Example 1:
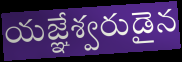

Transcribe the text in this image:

యజ్ఞేశ్వరుడైన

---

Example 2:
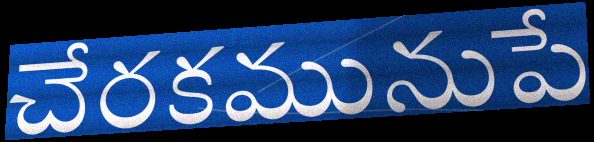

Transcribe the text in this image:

చేరకమునుపే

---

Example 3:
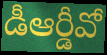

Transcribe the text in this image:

డీఆర్డీవో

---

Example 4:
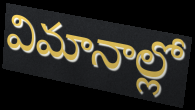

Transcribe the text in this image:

విమానాల్లో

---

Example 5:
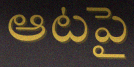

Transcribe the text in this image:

ఆటపై